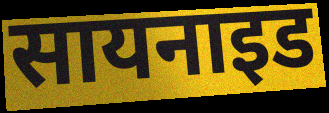
सायनाइड